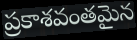
ప్రకాశవంతమైన